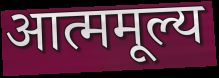
आत्ममूल्य